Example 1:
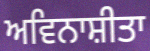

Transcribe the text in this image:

ਅਵਿਨਾਸ਼ੀਤਾ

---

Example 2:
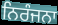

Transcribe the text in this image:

ਨਿਰੰਜਨਾ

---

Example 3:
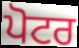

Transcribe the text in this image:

ਪੋਟਰ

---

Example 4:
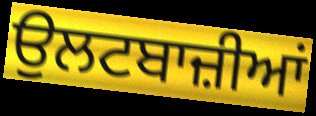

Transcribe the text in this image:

ਉਲਟਬਾਜ਼ੀਆਂ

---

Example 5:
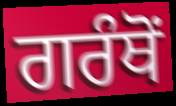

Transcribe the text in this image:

ਗਰੰਥੋਂ